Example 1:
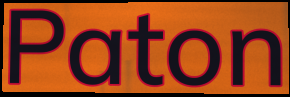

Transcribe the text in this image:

Paton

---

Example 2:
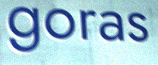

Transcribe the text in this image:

goras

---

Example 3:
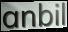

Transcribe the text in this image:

anbil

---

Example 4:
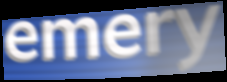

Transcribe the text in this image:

emery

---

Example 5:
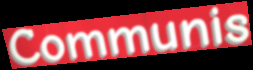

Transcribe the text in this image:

Communis